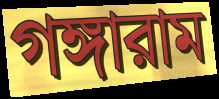
গঙ্গারাম